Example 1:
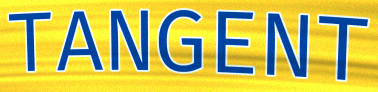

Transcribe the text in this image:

TANGENT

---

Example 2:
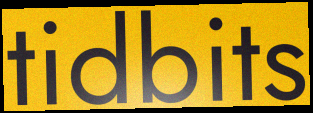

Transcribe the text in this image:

tidbits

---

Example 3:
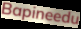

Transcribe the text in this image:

Bapineedu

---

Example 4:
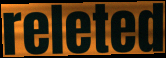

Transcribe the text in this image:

releted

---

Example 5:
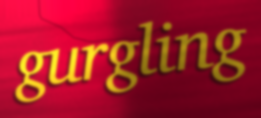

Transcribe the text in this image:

gurgling